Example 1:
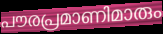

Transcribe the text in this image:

പൗരപ്രമാണിമാരും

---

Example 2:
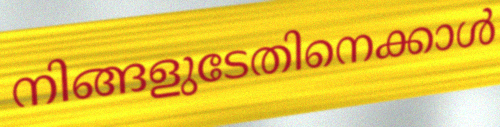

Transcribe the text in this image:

നിങ്ങളുടേതിനെക്കാൾ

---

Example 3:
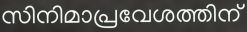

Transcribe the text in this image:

സിനിമാപ്രവേശത്തിന്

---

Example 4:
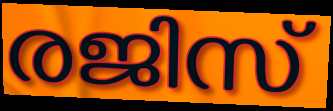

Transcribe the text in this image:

രജിസ്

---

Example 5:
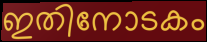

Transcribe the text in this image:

ഇതിനോടകം